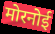
मोरनोई